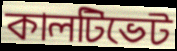
কালটিভেট